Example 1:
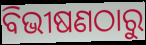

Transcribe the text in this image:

ବିଭୀଷଣଠାରୁ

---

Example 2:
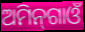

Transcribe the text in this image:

ଅମିନ୍‌ଗାଓଁ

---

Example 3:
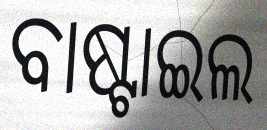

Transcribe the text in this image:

ବାଷ୍ଟାଇଲ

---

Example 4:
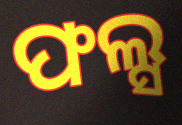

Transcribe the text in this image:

ଫଲ୍ସ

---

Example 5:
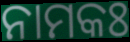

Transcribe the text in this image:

ନାମକଃ